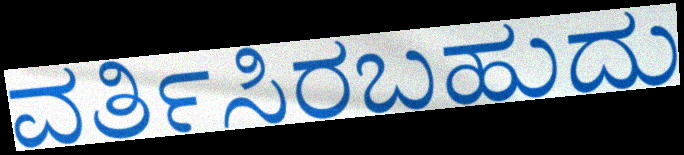
ವರ್ತಿಸಿರಬಹುದು